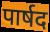
पार्षद